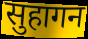
सुहागन